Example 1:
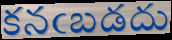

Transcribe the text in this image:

కనఁబడదు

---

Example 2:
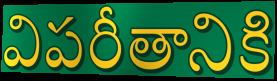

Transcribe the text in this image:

విపరీతానికి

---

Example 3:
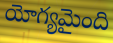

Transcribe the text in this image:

యోగ్యమైంది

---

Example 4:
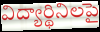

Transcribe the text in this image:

విద్యార్థినిలపై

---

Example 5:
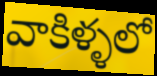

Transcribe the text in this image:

వాకిళ్ళలో